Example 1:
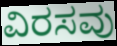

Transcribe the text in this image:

ವಿರಸವು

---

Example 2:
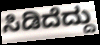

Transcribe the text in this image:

ಸಿಡಿದೆದ್ದು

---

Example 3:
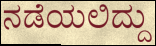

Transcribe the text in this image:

ನಡೆಯಲಿದ್ದು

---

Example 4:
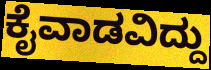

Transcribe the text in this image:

ಕೈವಾಡವಿದ್ದು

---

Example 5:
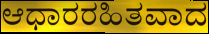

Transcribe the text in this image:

ಆಧಾರರಹಿತವಾದ